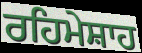
ਰਹਿਮੇਸ਼ਾਹ